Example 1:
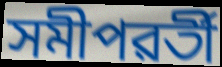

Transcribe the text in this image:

সমীপৱৰ্তী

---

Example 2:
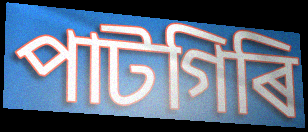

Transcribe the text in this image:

পাটগিৰি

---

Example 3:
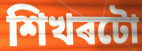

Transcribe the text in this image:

শিখৰটো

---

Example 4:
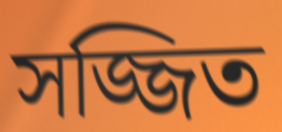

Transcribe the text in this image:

সজ্জিত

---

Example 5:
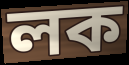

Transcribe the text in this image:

লক